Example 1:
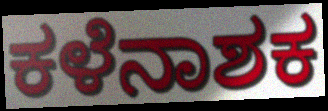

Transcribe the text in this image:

ಕಳೆನಾಶಕ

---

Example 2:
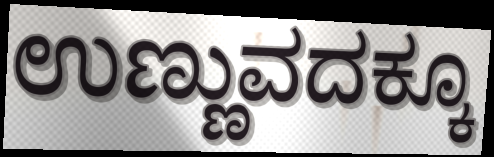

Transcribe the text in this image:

ಉಣ್ಣುವದಕ್ಕೂ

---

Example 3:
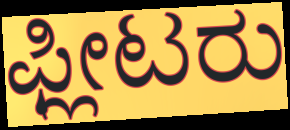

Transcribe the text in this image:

ಫ್ಲೀಟರು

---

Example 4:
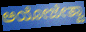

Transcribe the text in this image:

ಅಯೋಜೇತ್ವಾ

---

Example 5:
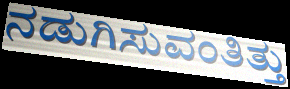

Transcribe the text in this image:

ನಡುಗಿಸುವಂತಿತ್ತು